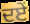
ਦਏਂ